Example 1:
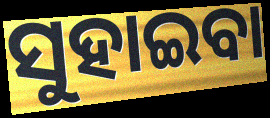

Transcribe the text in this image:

ସୁହାଇବା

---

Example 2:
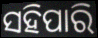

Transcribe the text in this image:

ସହିପାରି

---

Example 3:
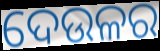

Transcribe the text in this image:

ଦେଉଳର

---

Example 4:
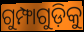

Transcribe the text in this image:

ଗୁମ୍ଫାଗୁଡ଼ିକୁ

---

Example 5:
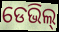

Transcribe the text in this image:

ଡେଭିଲ୍